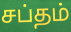
சப்தம்